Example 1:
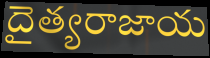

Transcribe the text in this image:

దైత్యరాజాయ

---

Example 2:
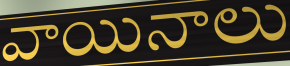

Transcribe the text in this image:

వాయినాలు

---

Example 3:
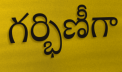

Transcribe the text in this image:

గర్భిణీగా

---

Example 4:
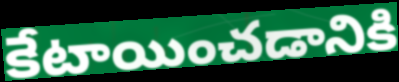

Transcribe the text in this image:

కేటాయించడానికి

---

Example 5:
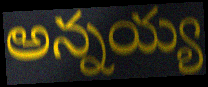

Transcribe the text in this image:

అన్నయ్య